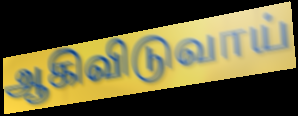
ஆகிவிடுவாய்